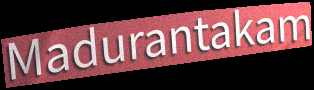
Madurantakam